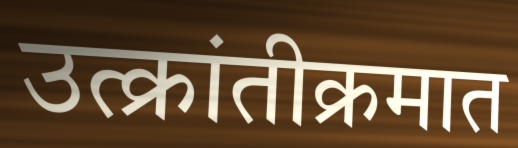
उत्क्रांतीक्रमात